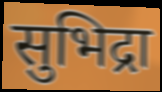
सुभिद्रा